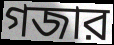
গজার